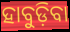
ହାବୁଡ଼ିବା